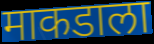
माकडाला